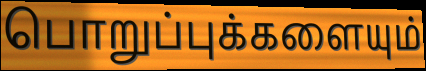
பொறுப்புக்களையும்